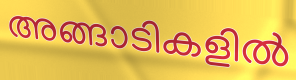
അങ്ങാടികളിൽ